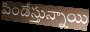
పిండేస్తున్నాయి